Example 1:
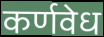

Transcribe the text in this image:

कर्णवेध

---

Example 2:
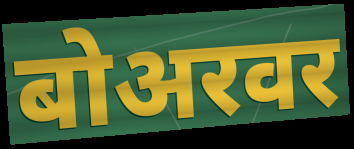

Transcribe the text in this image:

बोअरवर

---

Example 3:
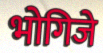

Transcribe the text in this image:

भोगिजे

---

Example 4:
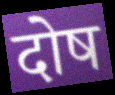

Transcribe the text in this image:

दोष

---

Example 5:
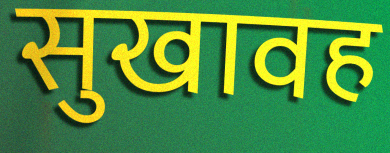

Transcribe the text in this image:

सुखावह